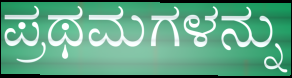
ಪ್ರಥಮಗಳನ್ನು